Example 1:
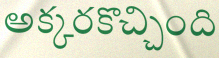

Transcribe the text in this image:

అక్కరకొచ్చింది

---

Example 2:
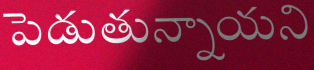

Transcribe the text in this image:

పెడుతున్నాయని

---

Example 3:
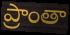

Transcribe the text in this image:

ప్రాంతా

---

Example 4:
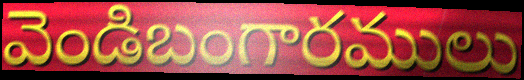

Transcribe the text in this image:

వెండిబంగారములు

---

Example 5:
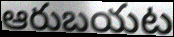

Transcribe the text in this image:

ఆరుబయట